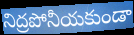
నిద్రపోనీయకుండా